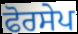
ਫੋਰਸੇਪ